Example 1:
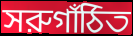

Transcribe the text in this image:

সৰুগাঁঠিত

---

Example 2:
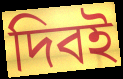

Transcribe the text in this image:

দিবই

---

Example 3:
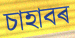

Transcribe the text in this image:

চাহাবৰ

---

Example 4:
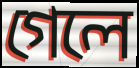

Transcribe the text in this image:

গেলে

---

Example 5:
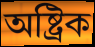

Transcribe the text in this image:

অষ্ট্ৰিক